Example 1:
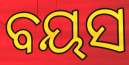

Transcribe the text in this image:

ବୟସ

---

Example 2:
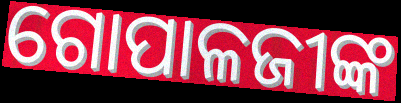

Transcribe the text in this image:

ଗୋପାଳଜୀଙ୍କ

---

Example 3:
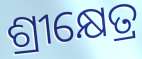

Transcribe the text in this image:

ଶ୍ରୀକ୍ଷେତ୍ର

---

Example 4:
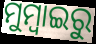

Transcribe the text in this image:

ମୁମ୍ବାଇରୁ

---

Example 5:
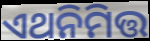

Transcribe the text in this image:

ଏଥନିମିତ୍ତ